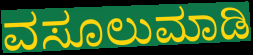
ವಸೂಲುಮಾಡಿ